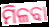
ମିଳବା